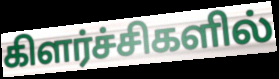
கிளர்ச்சிகளில்